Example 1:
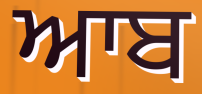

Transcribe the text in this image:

ਆਬ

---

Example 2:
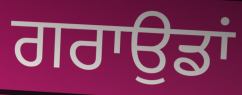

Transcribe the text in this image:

ਗਰਾਉਡਾਂ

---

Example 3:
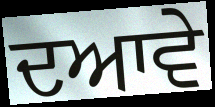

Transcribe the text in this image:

ਦਆਵੇ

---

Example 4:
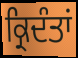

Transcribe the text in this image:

ਕ੍ਰਿਦੰਤਾਂ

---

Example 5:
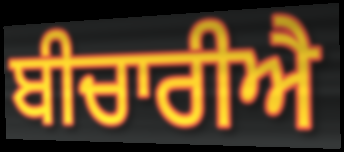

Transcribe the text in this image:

ਬੀਚਾਰੀਐ